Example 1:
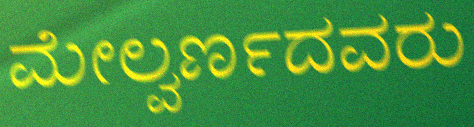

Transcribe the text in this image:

ಮೇಲ್ವರ್ಣದವರು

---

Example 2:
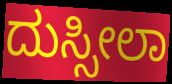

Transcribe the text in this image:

ದುಸ್ಸೀಲಾ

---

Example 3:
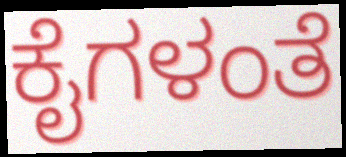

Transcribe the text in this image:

ಕೈಗಳಂತೆ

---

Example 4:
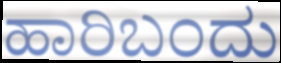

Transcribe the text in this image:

ಹಾರಿಬಂದು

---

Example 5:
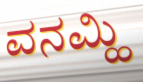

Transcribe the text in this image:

ವನಮ್ಹಿ